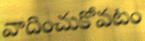
వాదించుకోవటం